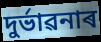
দুৰ্ভাৱনাৰ